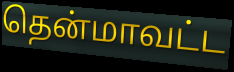
தென்மாவட்ட